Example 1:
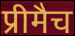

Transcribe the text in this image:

प्रीमैच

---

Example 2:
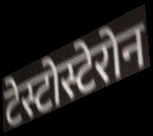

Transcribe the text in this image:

टेस्टोस्टेरोन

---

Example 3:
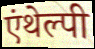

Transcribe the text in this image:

एंथेल्पी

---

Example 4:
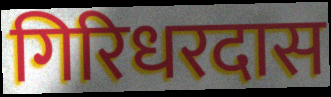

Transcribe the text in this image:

गिरिधरदास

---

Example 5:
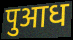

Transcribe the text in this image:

पुआध